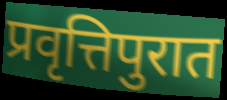
प्रवृत्तिपुरात